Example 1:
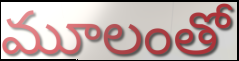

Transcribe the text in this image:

మూలంతో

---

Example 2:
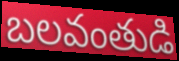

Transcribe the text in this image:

బలవంతుడి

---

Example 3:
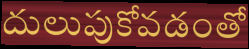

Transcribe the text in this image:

దులుపుకోవడంతో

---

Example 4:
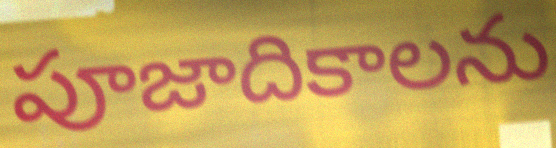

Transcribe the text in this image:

పూజాదికాలను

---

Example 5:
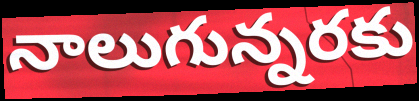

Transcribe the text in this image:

నాలుగున్నరకు